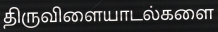
திருவிளையாடல்களை